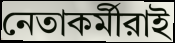
নেতাকর্মীরাই